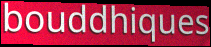
bouddhiques